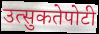
उत्सुकतेपोटी